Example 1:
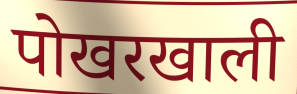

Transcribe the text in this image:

पोखरखाली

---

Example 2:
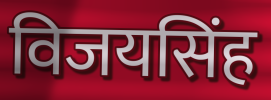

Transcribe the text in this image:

विजयसिंह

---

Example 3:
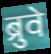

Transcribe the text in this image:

ब्रुवे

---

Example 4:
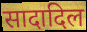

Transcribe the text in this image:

सादादिल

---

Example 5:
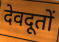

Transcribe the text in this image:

देवदूतों